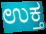
ಉಕ್ತ